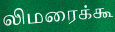
லிமரைக்கூ